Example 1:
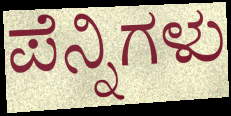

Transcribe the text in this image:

ಪೆನ್ನಿಗಳು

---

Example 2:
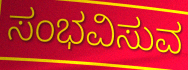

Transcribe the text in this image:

ಸಂಭವಿಸುವ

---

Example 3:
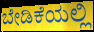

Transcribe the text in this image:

ಬೇಡಿಕೆಯಲ್ಲಿ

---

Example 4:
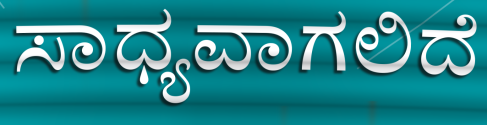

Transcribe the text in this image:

ಸಾಧ್ಯವಾಗಲಿದೆ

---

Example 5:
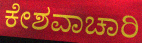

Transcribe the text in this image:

ಕೇಶವಾಚಾರಿ